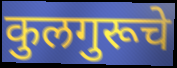
कुलगुरूचे